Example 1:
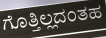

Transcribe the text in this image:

ಗೊತ್ತಿಲ್ಲದಂತಹ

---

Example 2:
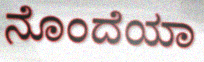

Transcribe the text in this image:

ನೊಂದೆಯಾ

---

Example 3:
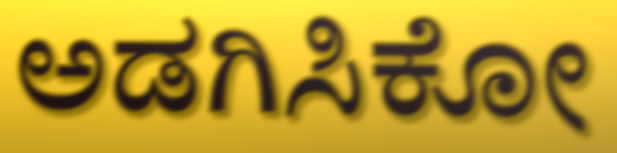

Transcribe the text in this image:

ಅಡಗಿಸಿಕೋ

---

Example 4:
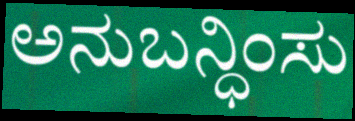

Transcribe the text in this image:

ಅನುಬನ್ಧಿಂಸು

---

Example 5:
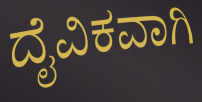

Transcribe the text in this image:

ದೈವಿಕವಾಗಿ